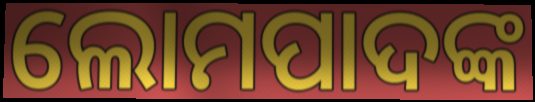
ଲୋମପାଦଙ୍କ